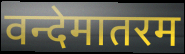
वन्देमातरम